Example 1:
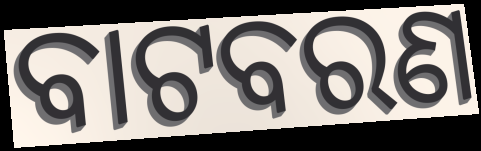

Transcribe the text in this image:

ବାଟବରଣ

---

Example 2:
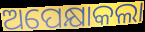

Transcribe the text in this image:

ଅପେକ୍ଷାକଲା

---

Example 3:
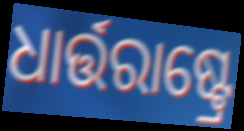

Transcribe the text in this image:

ଧାର୍ତ୍ତରାଷ୍ଟ୍ରେ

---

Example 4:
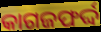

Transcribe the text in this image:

କାଗଜଫର୍ଦ୍ଦ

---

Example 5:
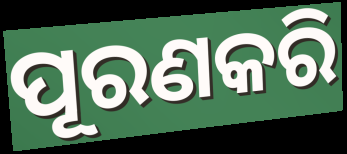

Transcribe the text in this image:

ପୂରଣକରି